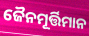
ଜୈନମୂର୍ତ୍ତିମାନ